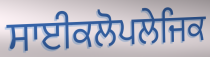
ਸਾਈਕਲੋਪਲੇਜਿਕ